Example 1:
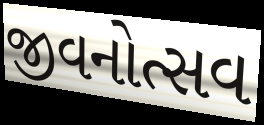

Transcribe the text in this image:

જીવનોત્સવ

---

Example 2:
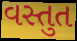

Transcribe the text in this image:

વસ્તુત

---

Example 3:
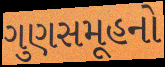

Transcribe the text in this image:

ગુણસમૂહનો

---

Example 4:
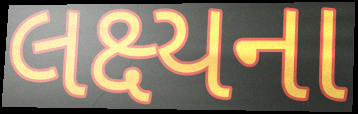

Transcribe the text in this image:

લક્ષ્યના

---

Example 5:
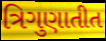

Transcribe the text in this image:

ત્રિગુણાતીત